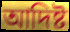
আদিষ্ট